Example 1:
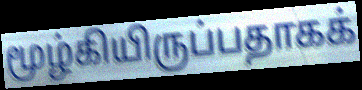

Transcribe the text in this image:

மூழ்கியிருப்பதாகக்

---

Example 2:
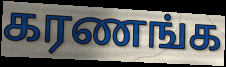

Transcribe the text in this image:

கரணங்க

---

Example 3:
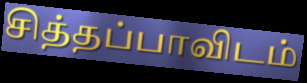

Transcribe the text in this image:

சித்தப்பாவிடம்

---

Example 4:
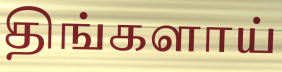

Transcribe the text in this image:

திங்களாய்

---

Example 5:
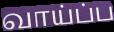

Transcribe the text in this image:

வாய்ப்ப